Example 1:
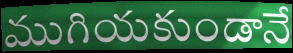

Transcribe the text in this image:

ముగియకుండానే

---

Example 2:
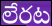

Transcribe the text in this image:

లేరట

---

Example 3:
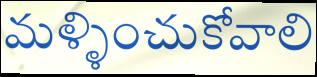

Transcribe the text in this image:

మళ్ళించుకోవాలి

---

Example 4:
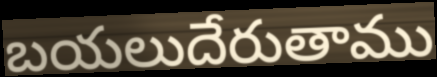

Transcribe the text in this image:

బయలుదేరుతాము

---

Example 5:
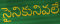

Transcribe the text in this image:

సైనికునివలే